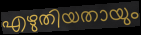
എഴുതിയതായും